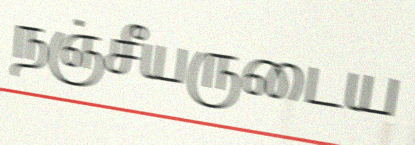
நஞ்சீயருடைய